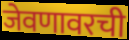
जेवणावरची